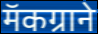
मॅकग्राने